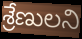
శ్రేణులని